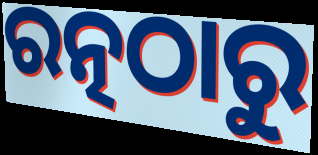
ରତ୍ନଠାରୁ